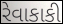
રેવાકાકી